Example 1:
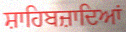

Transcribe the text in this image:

ਸ਼ਾਹਿਬਜ਼ਾਦਿਆਂ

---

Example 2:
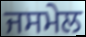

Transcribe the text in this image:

ਜਸਮੇਲ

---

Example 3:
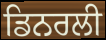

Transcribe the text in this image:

ਡਿਨਰਲੀ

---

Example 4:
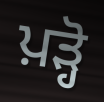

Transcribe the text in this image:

ਪ਼ੜ੍ਹੋ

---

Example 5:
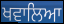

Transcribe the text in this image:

ਖਵਾਲਿਆ